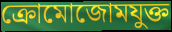
ক্রোমোজোমযুক্ত